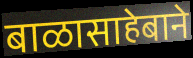
बाळासाहेबाने